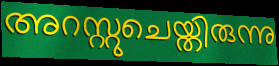
അറസ്റ്റുചെയ്തിരുന്നു